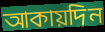
আকায়দিন